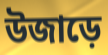
উজাড়ে